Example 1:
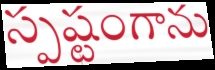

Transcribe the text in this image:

స్పష్టంగాను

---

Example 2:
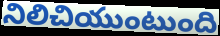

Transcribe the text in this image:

నిలిచియుంటుంది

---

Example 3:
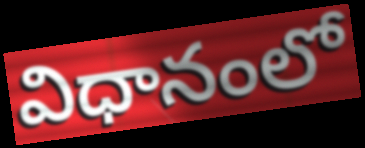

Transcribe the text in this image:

విధానంలో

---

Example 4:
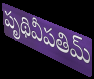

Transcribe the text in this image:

పృథివీపతిమ్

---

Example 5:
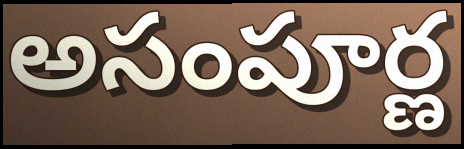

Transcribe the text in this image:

అసంపూర్ణ